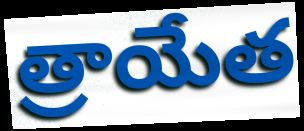
త్రాయేత